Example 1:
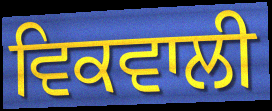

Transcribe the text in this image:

ਵਿਕਵਾਲੀ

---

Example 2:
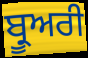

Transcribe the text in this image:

ਬ੍ਰੂਅਰੀ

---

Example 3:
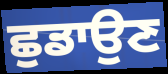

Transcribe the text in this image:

ਛੁਡਾਉਣ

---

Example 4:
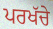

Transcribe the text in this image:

ਪਰਖੱਚੇ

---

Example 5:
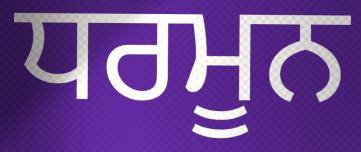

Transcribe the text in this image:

ਧਰਮੂਨ